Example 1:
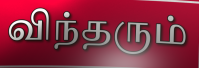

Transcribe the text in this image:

விந்தரும்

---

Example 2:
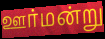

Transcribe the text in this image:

ஊர்மன்று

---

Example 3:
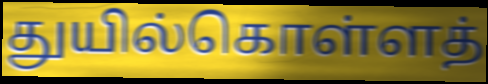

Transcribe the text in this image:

துயில்கொள்ளத்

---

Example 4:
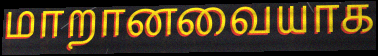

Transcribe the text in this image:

மாறானவையாக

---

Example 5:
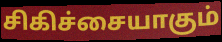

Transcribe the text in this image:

சிகிச்சையாகும்